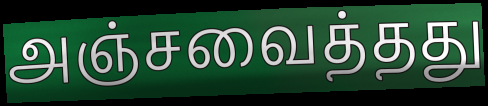
அஞ்சவைத்தது